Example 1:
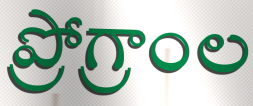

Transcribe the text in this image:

ప్రోగ్రాంల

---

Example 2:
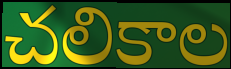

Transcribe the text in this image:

చలికాల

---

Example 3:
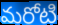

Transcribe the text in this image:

మరోటి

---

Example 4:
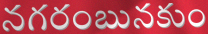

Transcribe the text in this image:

నగరంబునకుం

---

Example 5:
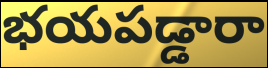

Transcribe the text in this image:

భయపడ్డారా